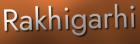
Rakhigarhi